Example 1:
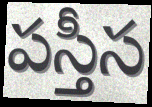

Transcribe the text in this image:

పస్తీస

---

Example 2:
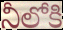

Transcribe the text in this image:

నీలోకి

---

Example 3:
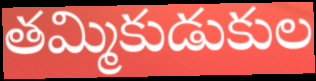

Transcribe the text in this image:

తమ్మికుడుకుల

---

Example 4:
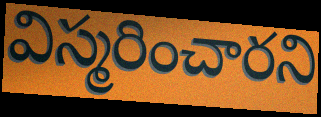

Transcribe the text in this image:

విస్మరించారని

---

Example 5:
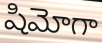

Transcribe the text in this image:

షిమోగా